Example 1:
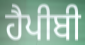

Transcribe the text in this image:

ਹੈਪੀਬੀ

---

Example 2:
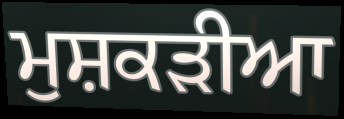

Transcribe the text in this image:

ਮੁਸ਼ਕੜੀਆ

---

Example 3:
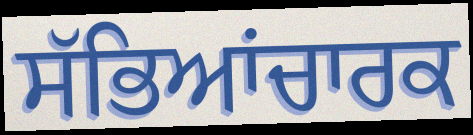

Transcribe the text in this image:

ਸੱਭਿਆਂਚਾਰਕ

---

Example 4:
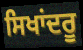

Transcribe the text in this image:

ਸਿਖਾਂਦਰੂ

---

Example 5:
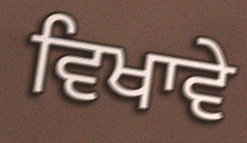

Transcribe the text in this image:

ਵਿਖਾਵੇ